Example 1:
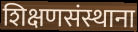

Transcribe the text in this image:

शिक्षणसंस्थाना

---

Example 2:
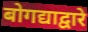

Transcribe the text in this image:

बोगद्याद्वारे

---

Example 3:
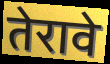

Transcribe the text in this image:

तेरावे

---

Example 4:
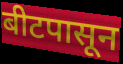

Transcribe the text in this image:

बीटपासून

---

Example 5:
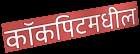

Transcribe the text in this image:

कॉकपिटमधील